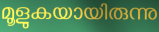
മൂളുകയായിരുന്നു